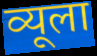
व्यूला